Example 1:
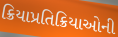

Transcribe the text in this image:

ક્રિયાપ્રતિક્રિયાઓની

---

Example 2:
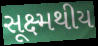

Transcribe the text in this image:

સૂક્ષ્મથીય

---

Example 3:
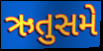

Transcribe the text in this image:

ઋતુસમે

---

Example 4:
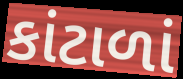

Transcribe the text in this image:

કાંટાળાં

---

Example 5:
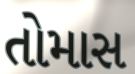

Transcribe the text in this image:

તોમાસ